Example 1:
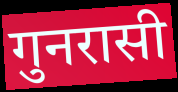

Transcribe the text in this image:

गुनरासी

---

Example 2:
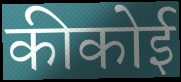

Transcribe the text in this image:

कीकोई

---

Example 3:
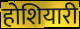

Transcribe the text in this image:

होशियारी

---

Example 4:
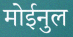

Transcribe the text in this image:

मोईनुल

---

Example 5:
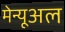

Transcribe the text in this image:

मेन्यूअल